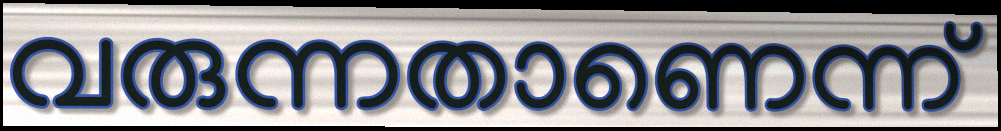
വരുന്നതാണെന്ന്